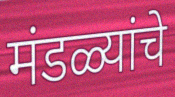
मंडळ्यांचे